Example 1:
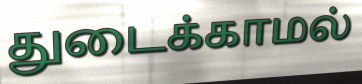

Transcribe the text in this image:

துடைக்காமல்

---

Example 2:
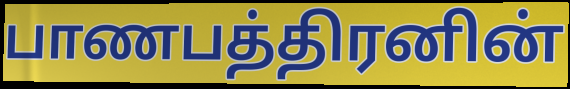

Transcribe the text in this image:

பாணபத்திரனின்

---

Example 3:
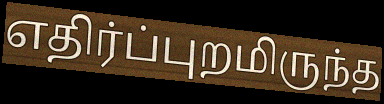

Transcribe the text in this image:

எதிர்ப்புறமிருந்த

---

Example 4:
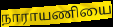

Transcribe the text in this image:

நாராயணியை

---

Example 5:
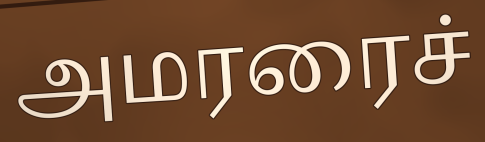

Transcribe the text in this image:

அமரரைச்